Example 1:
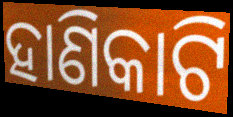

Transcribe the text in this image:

ହାଣିକାଟି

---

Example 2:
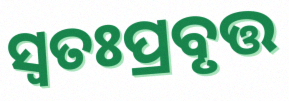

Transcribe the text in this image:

ସ୍ବତଃପ୍ରବୃତ୍ତ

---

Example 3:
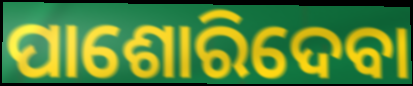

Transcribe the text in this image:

ପାଶୋରିଦେବା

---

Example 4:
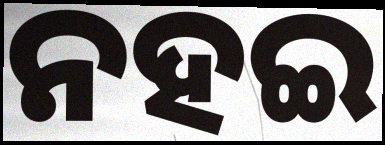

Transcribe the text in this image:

ନହଇ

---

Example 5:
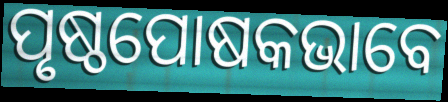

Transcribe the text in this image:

ପୃଷ୍ଠପୋଷକଭାବେ